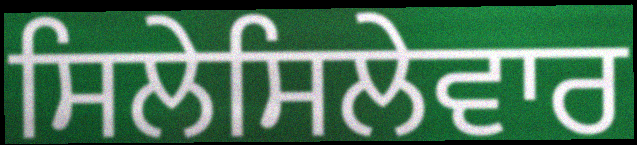
ਸਿਲੇਸਿਲੇਵਾਰ